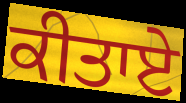
ਕੀਤਾਏ